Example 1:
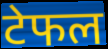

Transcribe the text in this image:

टेफल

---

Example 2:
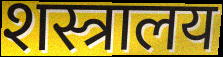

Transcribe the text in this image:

शस्त्रालय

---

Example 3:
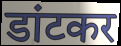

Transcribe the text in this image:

डांटकर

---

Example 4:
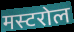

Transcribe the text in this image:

मस्टरोल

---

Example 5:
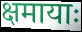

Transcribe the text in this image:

क्षमायाः